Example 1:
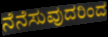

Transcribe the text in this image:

ನೆನೆಸುವುದರಿಂದ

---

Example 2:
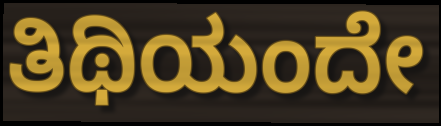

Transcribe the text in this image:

ತಿಥಿಯಂದೇ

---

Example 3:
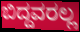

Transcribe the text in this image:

ಬಿದ್ದವರಲ್ಲ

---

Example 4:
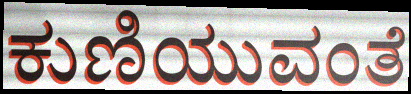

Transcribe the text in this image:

ಕುಣಿಯುವಂತೆ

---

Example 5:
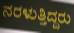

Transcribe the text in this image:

ನರಳುತ್ತಿದ್ದರು